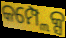
କମ୍ପ୍ଲେକ୍ସ